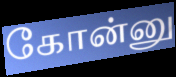
கோன்னு